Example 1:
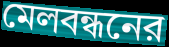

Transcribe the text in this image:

মেলবন্ধনের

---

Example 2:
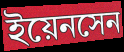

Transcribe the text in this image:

ইয়েনসেন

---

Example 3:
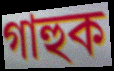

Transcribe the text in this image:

গাহুক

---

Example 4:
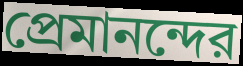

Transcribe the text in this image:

প্রেমানন্দের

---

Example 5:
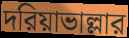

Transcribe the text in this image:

দরিয়াভাল্লার